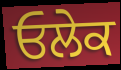
ਓਲੇਕ